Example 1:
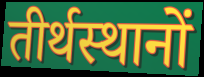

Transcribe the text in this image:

तीर्थस्थानों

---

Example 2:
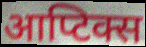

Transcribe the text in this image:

आप्टिक्स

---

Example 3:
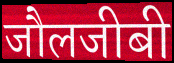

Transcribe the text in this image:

जौलजीबी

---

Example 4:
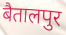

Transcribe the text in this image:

बैतालपुर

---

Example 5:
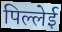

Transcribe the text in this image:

पिल्लेई